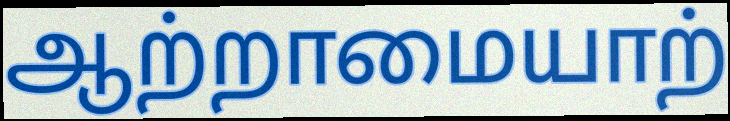
ஆற்றாமையாற்